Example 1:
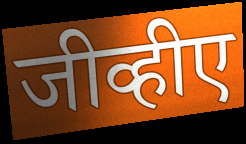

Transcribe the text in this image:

जीव्हीए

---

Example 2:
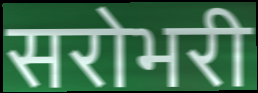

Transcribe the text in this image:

सरोभरी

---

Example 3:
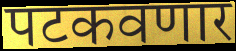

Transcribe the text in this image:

पटकवणार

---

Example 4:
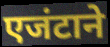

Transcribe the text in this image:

एजंटाने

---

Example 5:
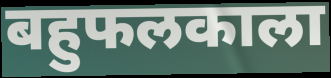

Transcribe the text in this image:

बहुफलकाला